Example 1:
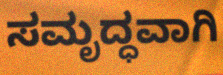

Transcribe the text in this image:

ಸಮೃದ್ಧವಾಗಿ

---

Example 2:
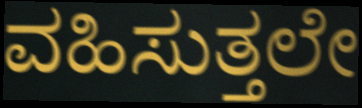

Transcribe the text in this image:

ವಹಿಸುತ್ತಲೇ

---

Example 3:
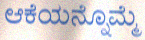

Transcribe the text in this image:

ಆಕೆಯನ್ನೊಮ್ಮೆ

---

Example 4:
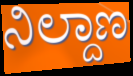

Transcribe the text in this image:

ನಿಲ್ದಾಣ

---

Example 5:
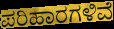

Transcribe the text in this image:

ಪರಿಹಾರಗಳಿವೆ